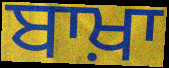
ਬਾਖ਼ਾ